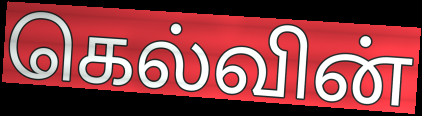
கெல்வின்